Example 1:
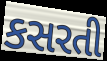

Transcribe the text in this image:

કસરતી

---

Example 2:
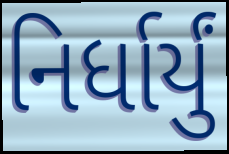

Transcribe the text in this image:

નિર્ધાર્યું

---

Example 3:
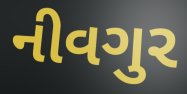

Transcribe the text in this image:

નીવગુર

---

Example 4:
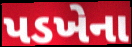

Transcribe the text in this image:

પડખેના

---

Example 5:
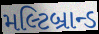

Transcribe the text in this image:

મલ્ટિબ્રાન્ડ